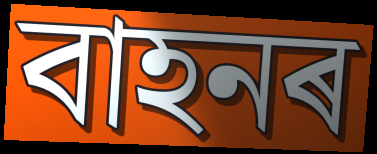
বাহনৰ